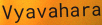
Vyavahara